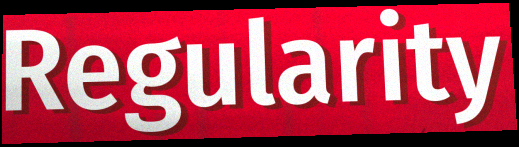
Regularity